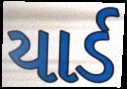
યાર્ડ